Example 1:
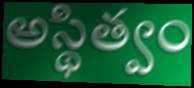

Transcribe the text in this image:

అస్థిత్వం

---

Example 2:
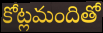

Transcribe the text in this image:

కోట్లమందితో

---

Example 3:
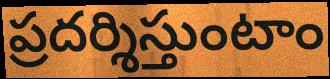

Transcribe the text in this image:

ప్రదర్శిస్తుంటాం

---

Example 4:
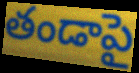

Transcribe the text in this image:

తండాపై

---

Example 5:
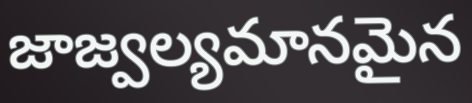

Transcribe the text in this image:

జాజ్వల్యమానమైన